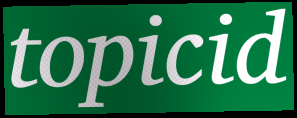
topicid